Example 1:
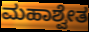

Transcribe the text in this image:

ಮಹಾಶ್ವೇತ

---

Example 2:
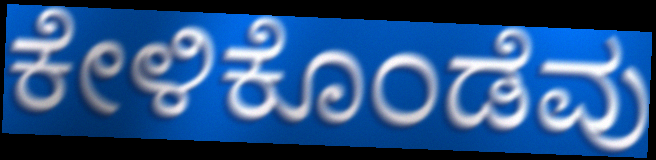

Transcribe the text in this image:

ಕೇಳಿಕೊಂಡೆವು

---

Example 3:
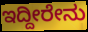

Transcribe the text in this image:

ಇದ್ದೀರೇನು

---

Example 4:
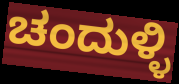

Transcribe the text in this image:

ಚಂದುಳ್ಳಿ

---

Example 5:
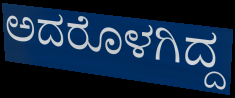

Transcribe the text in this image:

ಅದರೊಳಗಿದ್ದ